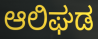
ಆಲಿಘಡ